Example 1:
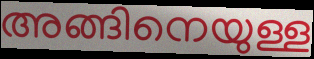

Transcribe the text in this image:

അങ്ങിനെയുള്ള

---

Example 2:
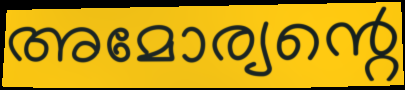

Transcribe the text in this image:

അമോര്യന്റെ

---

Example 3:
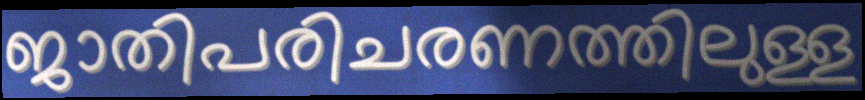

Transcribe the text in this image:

ജാതിപരിചരണത്തിലുള്ള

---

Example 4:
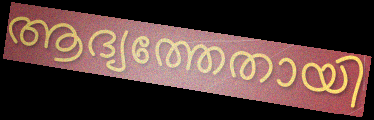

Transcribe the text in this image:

ആദ്യത്തേതായി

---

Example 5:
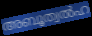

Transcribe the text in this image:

അബൂത്വൽഹ